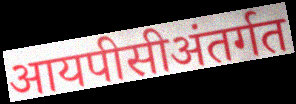
आयपीसीअंतर्गत